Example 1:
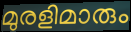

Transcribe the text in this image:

മുരളിമാരും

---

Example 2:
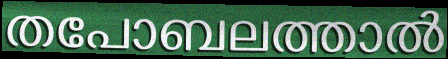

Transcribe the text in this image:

തപോബലത്താൽ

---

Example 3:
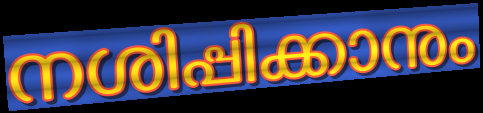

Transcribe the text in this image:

നശിപ്പിക്കാനും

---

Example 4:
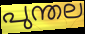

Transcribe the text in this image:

പുന്തല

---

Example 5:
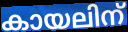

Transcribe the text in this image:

കായലിന്